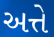
અત્તે